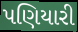
પણિયારી